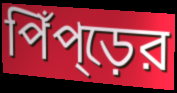
পিঁপ্‌ড়ের